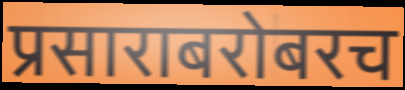
प्रसाराबरोबरच